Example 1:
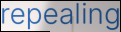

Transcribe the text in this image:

repealing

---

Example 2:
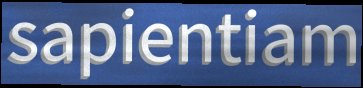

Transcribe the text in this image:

sapientiam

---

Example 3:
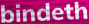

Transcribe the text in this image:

bindeth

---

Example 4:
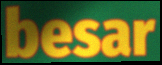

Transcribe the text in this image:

besar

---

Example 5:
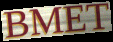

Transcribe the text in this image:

BMET